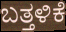
ಬತ್ತಳಿಕೆ